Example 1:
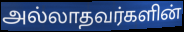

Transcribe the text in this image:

அல்லாதவர்களின்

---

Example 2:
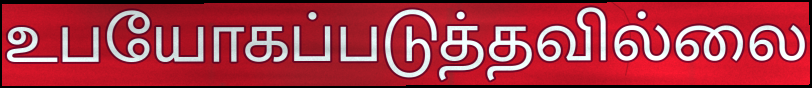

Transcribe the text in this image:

உபயோகப்படுத்தவில்லை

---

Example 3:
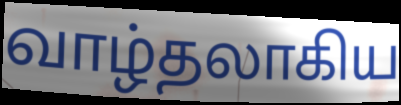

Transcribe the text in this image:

வாழ்தலாகிய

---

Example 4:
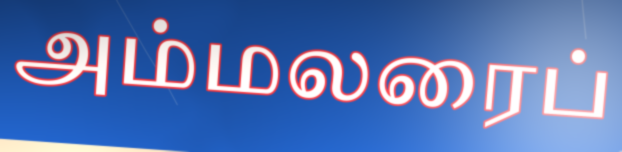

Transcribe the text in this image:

அம்மலரைப்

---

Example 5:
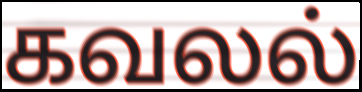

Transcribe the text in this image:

கவலல்